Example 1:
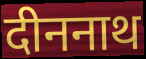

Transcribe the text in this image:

दीननाथ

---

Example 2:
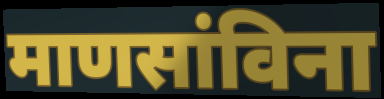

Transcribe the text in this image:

माणसांविना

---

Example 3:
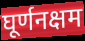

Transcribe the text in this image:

घूर्णनक्षम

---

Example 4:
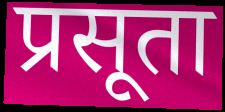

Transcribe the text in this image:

प्रसूता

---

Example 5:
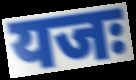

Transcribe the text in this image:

यजः